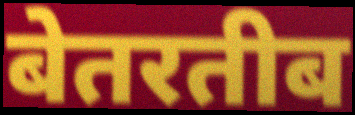
बेतरतीब